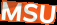
MSU